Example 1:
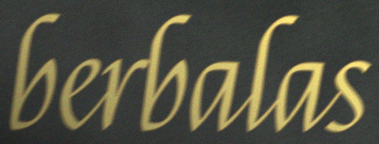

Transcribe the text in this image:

berbalas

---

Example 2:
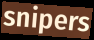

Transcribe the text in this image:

snipers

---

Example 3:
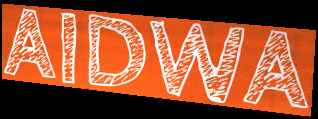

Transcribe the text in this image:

AIDWA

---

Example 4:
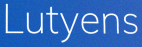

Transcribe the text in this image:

Lutyens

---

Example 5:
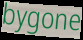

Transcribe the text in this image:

bygone